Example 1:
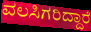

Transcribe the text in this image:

ವಲಸಿಗರಿದ್ದಾರೆ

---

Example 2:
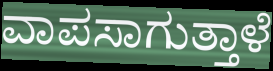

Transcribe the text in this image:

ವಾಪಸಾಗುತ್ತಾಳೆ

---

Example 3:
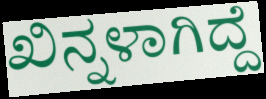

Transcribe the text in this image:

ಖಿನ್ನಳಾಗಿದ್ದೆ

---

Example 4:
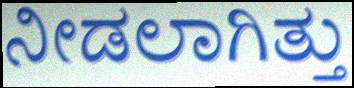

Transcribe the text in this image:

ನೀಡಲಾಗಿತ್ತು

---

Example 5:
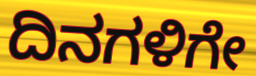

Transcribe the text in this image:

ದಿನಗಳಿಗೇ